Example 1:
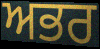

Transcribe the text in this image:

ਅਭਰ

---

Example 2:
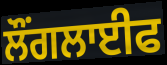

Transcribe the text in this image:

ਲੌਂਗਲਾਈਫ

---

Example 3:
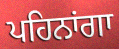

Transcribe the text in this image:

ਪਹਿਨਾਂਗਾ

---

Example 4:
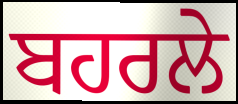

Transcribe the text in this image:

ਬਹਰਲੇ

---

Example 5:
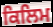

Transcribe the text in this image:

ਕਿਲਿਮ